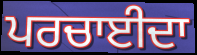
ਪਰਚਾਈਦਾ